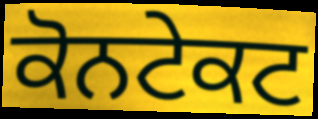
ਕੋਨਟੇਕਟ